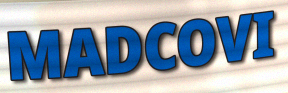
MADCOVI